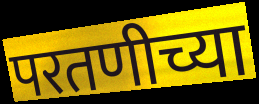
परतणीच्या